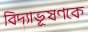
বিদ্যাভূষণকে